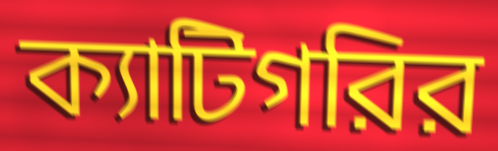
ক্যাটিগরির